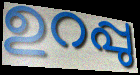
ഉറപ്പു